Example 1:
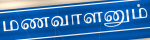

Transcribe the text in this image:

மணவாளனும்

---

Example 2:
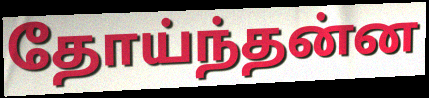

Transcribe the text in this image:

தோய்ந்தன்ன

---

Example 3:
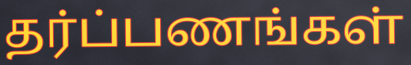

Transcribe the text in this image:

தர்ப்பணங்கள்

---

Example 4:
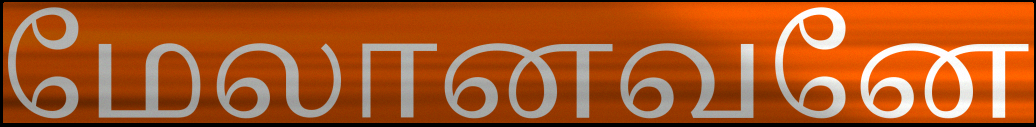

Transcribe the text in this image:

மேலானவனே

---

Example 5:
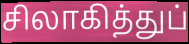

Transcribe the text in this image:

சிலாகித்துப்